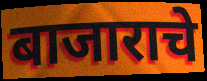
बाजाराचे